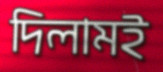
দিলামই